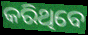
କରିଥିବେ